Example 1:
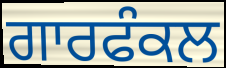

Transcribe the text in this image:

ਗਾਰਫੰਕਲ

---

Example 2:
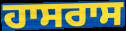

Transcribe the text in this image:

ਹਾਸਰਾਸ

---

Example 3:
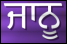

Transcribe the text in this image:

ਜਾਨੂ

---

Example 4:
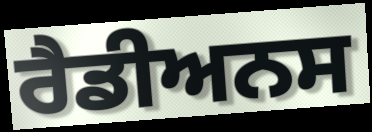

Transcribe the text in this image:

ਰੈਡੀਅਨਸ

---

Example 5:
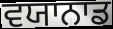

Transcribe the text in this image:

ਵਯਾਨਾਡ